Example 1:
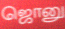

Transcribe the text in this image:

ஜொனு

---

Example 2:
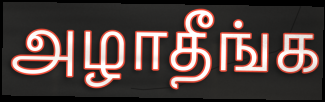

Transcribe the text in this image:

அழாதீங்க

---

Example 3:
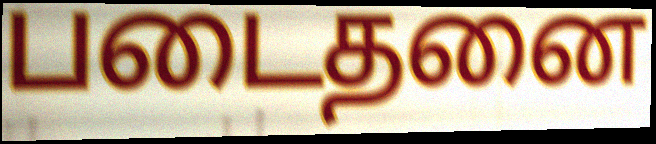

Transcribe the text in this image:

படைதனை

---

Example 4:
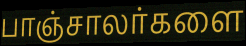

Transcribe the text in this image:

பாஞ்சாலர்களை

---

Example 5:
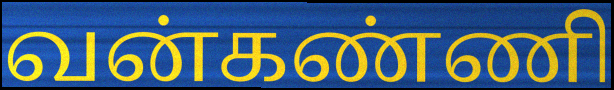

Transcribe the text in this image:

வன்கண்ணி